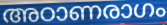
അഠാണരാഗം